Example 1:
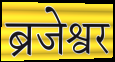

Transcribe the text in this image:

ब्रजेश्वर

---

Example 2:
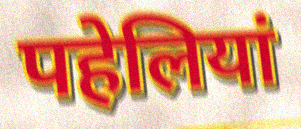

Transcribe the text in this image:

पहेलियां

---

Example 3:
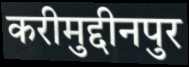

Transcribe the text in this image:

करीमुद्दीनपुर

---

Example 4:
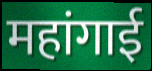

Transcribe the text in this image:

महांगाई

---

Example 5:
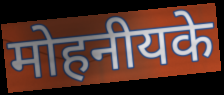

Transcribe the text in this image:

मोहनीयके